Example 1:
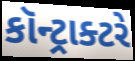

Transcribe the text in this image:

કૉન્ટ્રાક્ટરે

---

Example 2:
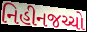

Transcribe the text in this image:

નિહીનજચ્ચો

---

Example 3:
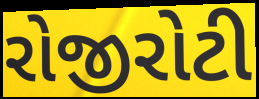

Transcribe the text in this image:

રોજીરોટી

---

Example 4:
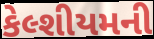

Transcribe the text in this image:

કેલ્શીયમની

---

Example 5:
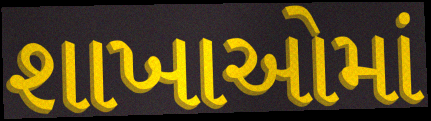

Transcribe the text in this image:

શાખાઓમાં